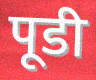
पूडी